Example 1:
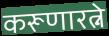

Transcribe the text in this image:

करूणारत्ने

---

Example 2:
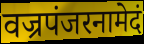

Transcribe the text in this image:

वज्रपंजरनामेदं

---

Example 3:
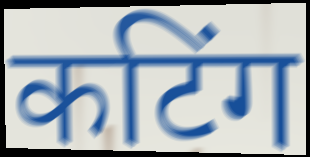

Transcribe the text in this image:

कटिंग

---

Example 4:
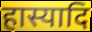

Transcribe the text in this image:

हास्यादि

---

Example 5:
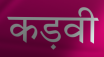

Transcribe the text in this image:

कड़वी